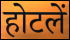
होटलें